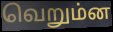
வெறும்ன